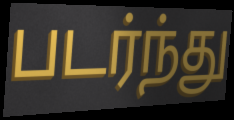
படர்ந்து